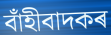
বাঁহীবাদকৰ